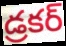
డ్రకర్